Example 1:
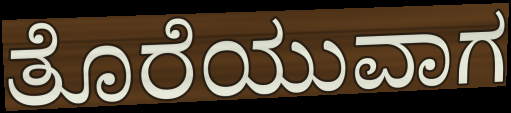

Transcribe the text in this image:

ತೊರೆಯುವಾಗ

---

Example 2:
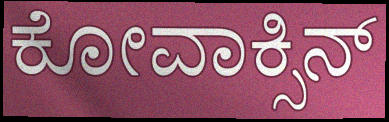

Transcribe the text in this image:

ಕೋವಾಕ್ಸಿನ್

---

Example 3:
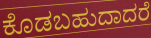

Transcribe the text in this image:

ಕೊಡಬಹುದಾದರೆ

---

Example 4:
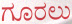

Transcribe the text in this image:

ಗೂರಲು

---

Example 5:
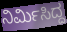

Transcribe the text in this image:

ನಿರ್ಮಿಸಿದ್ದ